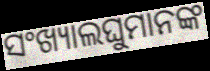
ସଂଖ୍ୟାଲଘୁମାନଙ୍କ